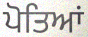
ਪੋਤਿਆਂ